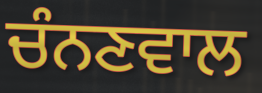
ਚੰਨਣਵਾਲ